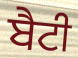
ਬੈਟੀ